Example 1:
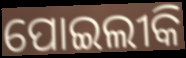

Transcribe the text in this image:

ପୋଇଲୀକି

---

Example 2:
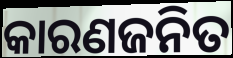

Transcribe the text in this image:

କାରଣଜନିତ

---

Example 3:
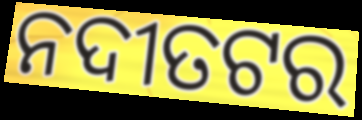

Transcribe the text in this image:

ନଦୀତଟର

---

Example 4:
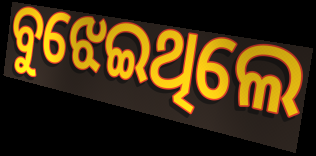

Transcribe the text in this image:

ବୁଝେଇଥିଲେ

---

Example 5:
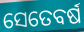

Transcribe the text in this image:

ସେତେବର୍ଷ